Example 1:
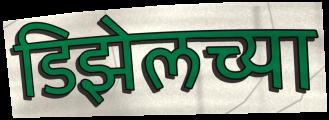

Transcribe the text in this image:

डिझेलच्या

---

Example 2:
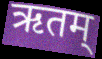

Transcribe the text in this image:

ऋतम्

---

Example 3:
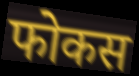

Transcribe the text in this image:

फोकस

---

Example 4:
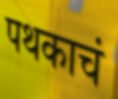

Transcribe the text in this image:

पथकाचं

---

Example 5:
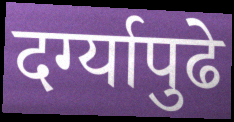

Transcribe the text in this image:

दर्ग्यापुढे